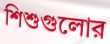
শিশুগুলোর